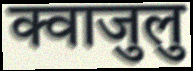
क्वाजुलु